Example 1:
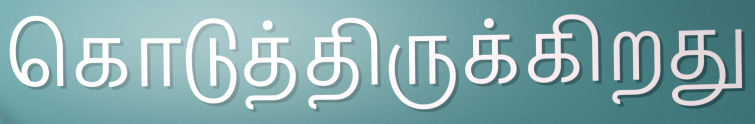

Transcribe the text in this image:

கொடுத்திருக்கிறது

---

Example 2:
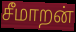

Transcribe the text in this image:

சீமாறன்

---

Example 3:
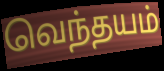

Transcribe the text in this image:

வெந்தயம்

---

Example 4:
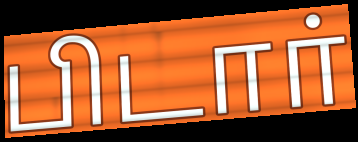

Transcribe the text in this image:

பிடார்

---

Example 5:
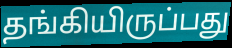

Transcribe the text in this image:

தங்கியிருப்பது